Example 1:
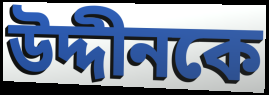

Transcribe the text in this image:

উদ্দীনকে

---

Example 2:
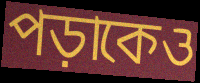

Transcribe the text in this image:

পড়াকেও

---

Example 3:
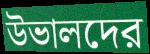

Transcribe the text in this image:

উভালদের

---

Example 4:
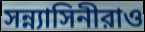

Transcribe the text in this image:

সন্ন্যাসিনীরাও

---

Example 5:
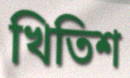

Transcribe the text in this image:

খিতিশ